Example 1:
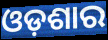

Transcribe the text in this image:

ଓଡ଼ଶାର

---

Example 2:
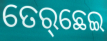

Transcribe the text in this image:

ତେର୍‌ଛେଇ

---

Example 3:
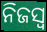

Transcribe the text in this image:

ନିଜସ୍ଵ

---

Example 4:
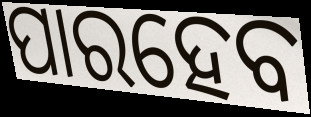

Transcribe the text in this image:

ପାରହେବ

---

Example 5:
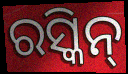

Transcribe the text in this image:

ରସ୍କିନ୍